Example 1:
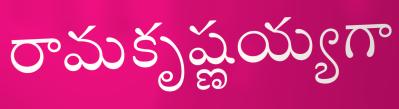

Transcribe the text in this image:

రామకృష్ణయ్యగా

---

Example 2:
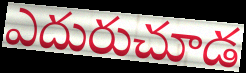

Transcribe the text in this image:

ఎదురుచూడ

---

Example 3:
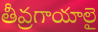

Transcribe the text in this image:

తీవ్రగాయాలై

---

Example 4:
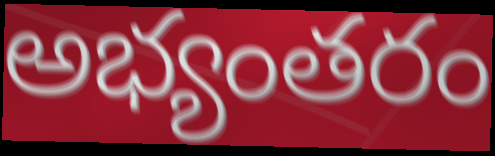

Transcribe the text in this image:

అభ్యంతరం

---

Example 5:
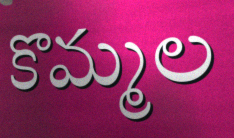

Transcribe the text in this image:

కొమ్మల